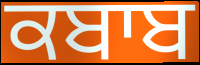
ਕਬਾਬ